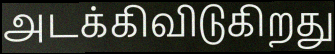
அடக்கிவிடுகிறது